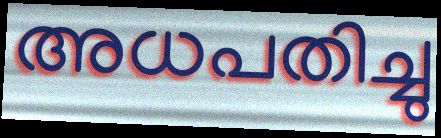
അധപതിച്ചു